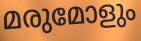
മരുമോളും